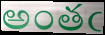
అంతఁ